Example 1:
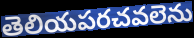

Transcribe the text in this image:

తెలియపరచవలెను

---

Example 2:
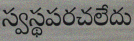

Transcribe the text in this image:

స్వస్థపరచలేదు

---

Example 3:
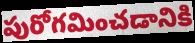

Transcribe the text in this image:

పురోగమించడానికి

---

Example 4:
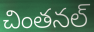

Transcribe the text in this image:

చింతనల్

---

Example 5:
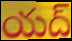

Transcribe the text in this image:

యద్